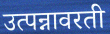
उत्पन्नावरती